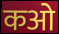
कओ